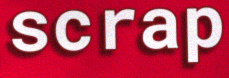
scrap